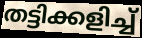
തട്ടിക്കളിച്ച്